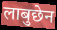
लाबुछेन